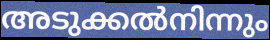
അടുക്കൽനിന്നും